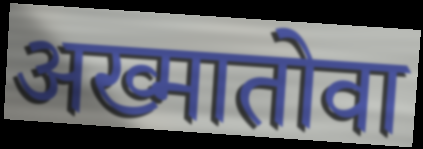
अख्मातोवा